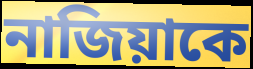
নাজিয়াকে